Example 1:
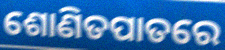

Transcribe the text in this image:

ଶୋଣିତପାତରେ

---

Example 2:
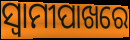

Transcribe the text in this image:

ସ୍ୱାମୀପାଖରେ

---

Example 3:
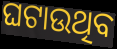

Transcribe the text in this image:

ଘଟାଉଥିବ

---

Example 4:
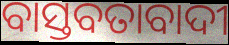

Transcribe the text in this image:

ବାସ୍ତବତାବାଦୀ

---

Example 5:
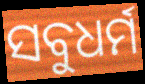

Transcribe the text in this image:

ସବୁଧର୍ମ